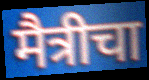
मैत्रीचा